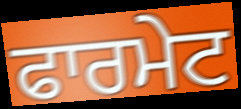
ਫਾਰਮੇਟ